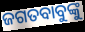
ଜଗତବାବୁଙ୍କୁ